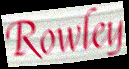
Rowley